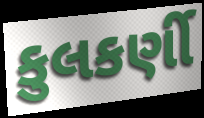
કુલકર્ણી